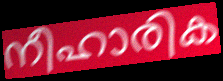
നീഹാരിക